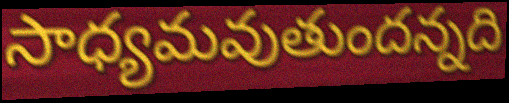
సాధ్యమవుతుందన్నది